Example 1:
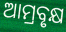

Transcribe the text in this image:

ଆମ୍ରବୃକ୍ଷ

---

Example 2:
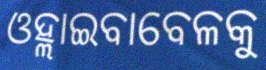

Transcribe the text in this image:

ଓହ୍ଲାଇବାବେଳକୁ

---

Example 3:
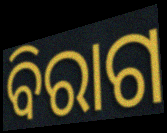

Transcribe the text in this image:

ବିରାଗ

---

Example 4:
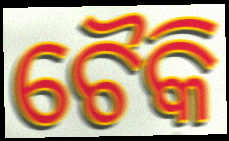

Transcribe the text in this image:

ଚୈକି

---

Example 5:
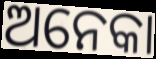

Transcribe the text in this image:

ଅନେକା